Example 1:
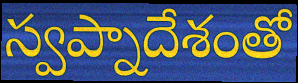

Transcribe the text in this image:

స్వప్నాదేశంతో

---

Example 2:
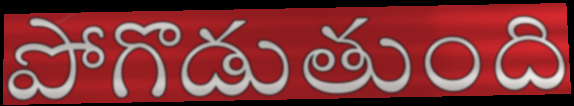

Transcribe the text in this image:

పోగొడుతుంది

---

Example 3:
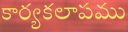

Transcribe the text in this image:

కార్యకలాపము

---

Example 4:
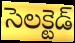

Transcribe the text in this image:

సెలక్టెడ్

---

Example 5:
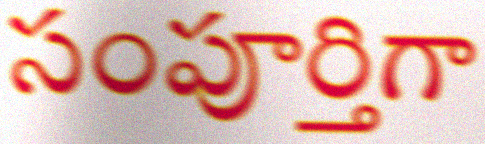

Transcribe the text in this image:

సంపూర్తిగా